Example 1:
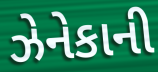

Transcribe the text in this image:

ઝેનેકાની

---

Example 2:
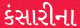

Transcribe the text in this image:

કંસારીના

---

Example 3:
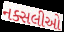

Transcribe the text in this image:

નક્સલીઓ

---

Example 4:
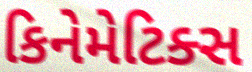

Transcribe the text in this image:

કિનેમેટિક્સ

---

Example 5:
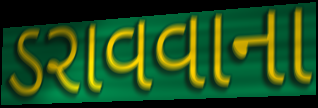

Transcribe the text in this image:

ડરાવવાના